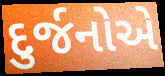
દુર્જનોએ